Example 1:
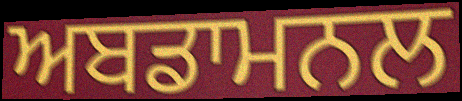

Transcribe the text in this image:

ਅਬਡਾਮਨਲ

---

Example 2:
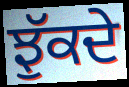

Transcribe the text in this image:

ਝੁੱਕਦੇ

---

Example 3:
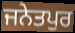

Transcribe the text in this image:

ਜਨੇਤਪੁਰ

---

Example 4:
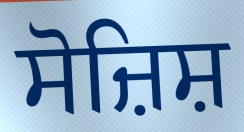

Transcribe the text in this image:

ਸੋਜ਼ਿਸ਼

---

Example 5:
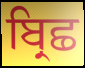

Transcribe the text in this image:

ਬ੍ਰਿਛ